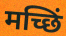
मच्छिं